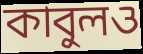
কাবুলও